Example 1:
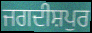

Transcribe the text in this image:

ਜਗਦੀਸ਼ਪੁਰ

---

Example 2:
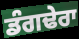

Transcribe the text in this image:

ਡੰਗਢੇਰਾ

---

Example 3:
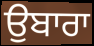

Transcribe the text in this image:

ਉਬਾਰਾ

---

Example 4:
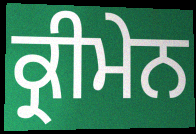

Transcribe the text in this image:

ਕ੍ਰੀਮੇਨ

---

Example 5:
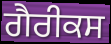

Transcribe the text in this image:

ਗੈਰੀਕਸ